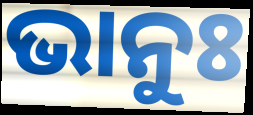
ଭାନୁଃ